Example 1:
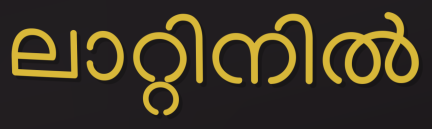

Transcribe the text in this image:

ലാറ്റിനിൽ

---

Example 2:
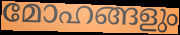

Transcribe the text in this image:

മോഹങ്ങളും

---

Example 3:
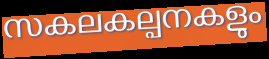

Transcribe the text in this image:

സകലകല്പനകളും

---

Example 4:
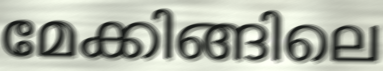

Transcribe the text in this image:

മേക്കിങ്ങിലെ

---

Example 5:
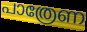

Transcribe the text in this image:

പാത്രേണ